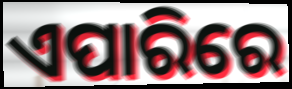
ଏପାରିରେ